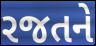
રજતને